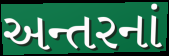
અન્તરનાં